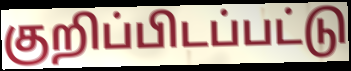
குறிப்பிடப்பட்டு